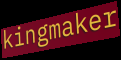
kingmaker